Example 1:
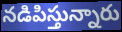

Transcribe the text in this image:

నడిపిస్తున్నారు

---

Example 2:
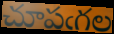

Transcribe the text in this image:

చూపఁగల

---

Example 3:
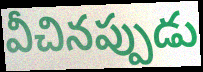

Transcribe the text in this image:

వీచినప్పుడు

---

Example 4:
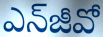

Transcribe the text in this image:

ఎన్‌జీవో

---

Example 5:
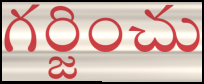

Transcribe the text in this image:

గర్జించు